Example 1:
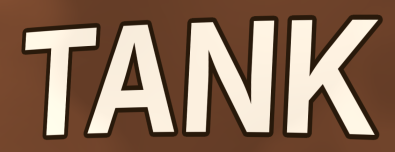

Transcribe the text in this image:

TANK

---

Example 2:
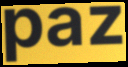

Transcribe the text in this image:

paz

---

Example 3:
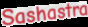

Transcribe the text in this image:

Sashastra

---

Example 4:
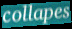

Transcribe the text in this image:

collapes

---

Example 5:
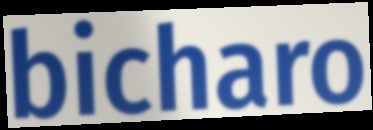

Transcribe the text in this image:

bicharo